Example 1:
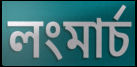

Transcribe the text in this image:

লংমার্চ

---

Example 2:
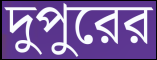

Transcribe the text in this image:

দুপুরের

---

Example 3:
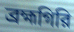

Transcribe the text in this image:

ব্রহ্মগিরি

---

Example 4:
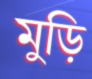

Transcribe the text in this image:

মুড়ি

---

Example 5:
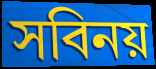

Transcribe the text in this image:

সবিনয়